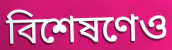
বিশেষণেও